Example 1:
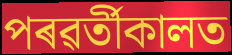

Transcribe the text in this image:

পৰৱৰ্তীকালত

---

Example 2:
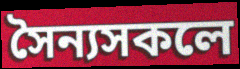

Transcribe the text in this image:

সৈন্যসকলে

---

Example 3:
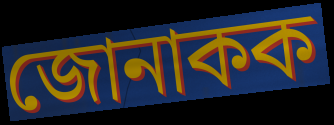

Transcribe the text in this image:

জোনাকক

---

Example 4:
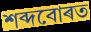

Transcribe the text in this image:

শব্দবোৰত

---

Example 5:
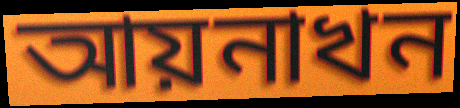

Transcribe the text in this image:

আয়নাখন